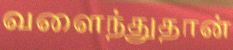
வளைந்துதான்